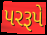
પરરૂપે